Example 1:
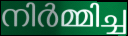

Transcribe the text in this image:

നിർമ്മിച്ച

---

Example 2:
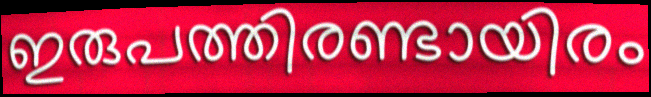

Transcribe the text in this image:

ഇരുപത്തിരണ്ടായിരം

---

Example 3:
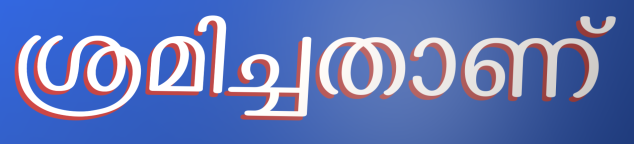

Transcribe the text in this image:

ശ്രമിച്ചതാണ്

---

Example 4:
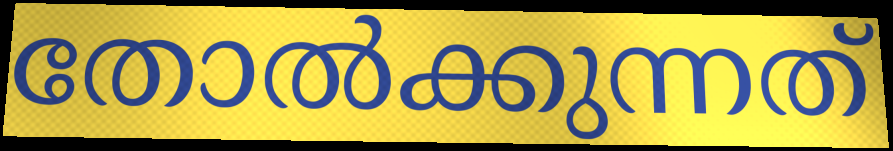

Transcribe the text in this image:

തോൽക്കുന്നത്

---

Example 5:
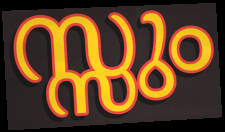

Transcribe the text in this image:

സ്സും